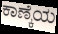
ಕಾಣ್ಕೆಯ